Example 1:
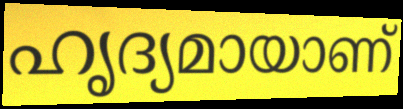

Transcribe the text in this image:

ഹൃദ്യമായാണ്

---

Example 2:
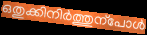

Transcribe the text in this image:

ഒതുക്കിനിർത്തുന്പോൾ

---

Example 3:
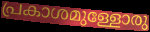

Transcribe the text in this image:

പ്രകാശമുള്ളോരു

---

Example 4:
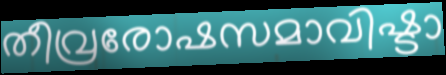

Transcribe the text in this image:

തീവ്രരോഷസമാവിഷ്ടാ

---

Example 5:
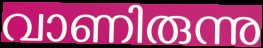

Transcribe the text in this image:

വാണിരുന്നു